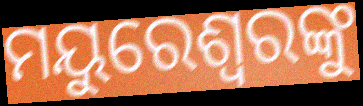
ମୟୁରେଶ୍ବରଙ୍କୁ